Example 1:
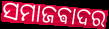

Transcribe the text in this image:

ସମାଜଵାଦର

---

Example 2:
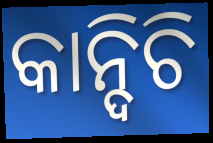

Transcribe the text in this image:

କାନ୍ଦିଚି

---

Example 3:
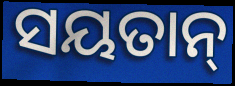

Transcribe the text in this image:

ସୟତାନ୍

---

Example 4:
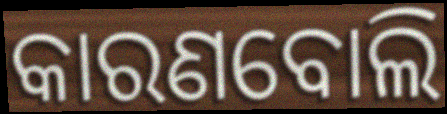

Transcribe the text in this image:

କାରଣବୋଲି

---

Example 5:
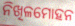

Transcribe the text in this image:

ନିଖିଳମୋହନ